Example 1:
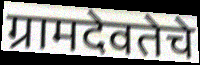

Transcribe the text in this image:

ग्रामदेवतेचे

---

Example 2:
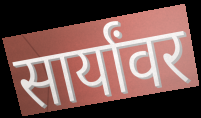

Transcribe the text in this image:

सार्यांवर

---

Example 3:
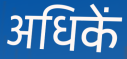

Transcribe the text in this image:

अधिकें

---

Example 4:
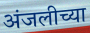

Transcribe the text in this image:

अंजलीच्या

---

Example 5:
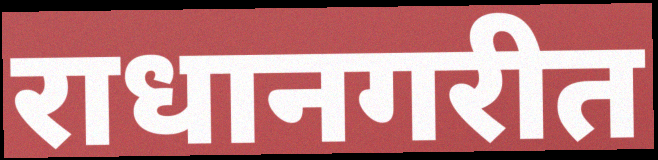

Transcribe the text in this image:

राधानगरीत